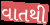
વાતથી